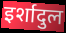
इर्शादुल